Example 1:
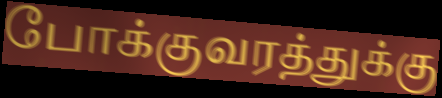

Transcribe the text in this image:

போக்குவரத்துக்கு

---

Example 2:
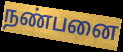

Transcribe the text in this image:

நண்பனை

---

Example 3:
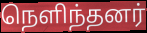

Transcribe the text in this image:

நெளிந்தனர்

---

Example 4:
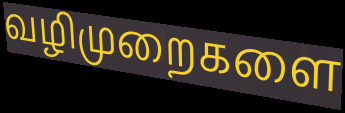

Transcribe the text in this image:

வழிமுறைகளை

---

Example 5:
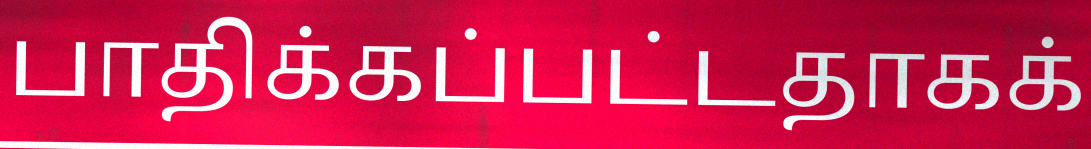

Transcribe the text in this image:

பாதிக்கப்பட்டதாகக்